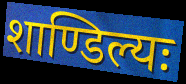
शाण्डिल्यः